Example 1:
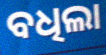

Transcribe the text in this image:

ବଧିଲା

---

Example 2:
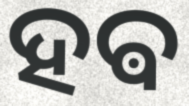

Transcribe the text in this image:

ହଵ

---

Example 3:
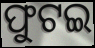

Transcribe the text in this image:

ଫୁଟଇ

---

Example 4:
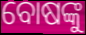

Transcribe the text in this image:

ବୋଷଙ୍କୁ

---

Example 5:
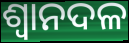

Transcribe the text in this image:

ଶ୍ୱାନଦଳ